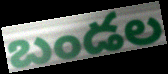
బండల